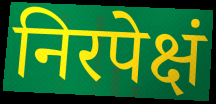
निरपेक्षं